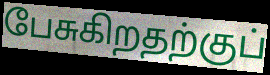
பேசுகிறதற்குப்